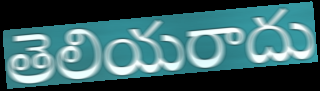
తెలియరాదు